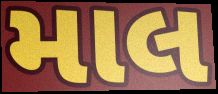
માલ